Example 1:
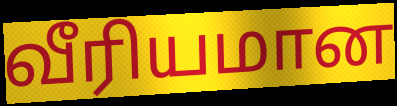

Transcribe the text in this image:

வீரியமான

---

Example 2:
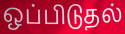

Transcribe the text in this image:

ஒப்பிடுதல்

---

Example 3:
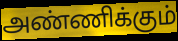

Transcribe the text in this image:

அண்ணிக்கும்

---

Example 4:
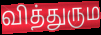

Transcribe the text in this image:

வித்துரும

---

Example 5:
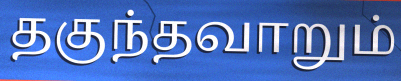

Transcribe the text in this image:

தகுந்தவாறும்